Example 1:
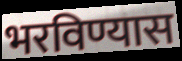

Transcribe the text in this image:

भरविण्यास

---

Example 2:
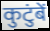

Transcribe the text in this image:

कुटुंबें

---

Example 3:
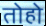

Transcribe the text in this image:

तोहो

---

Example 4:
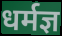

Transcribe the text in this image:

धर्मज्ञ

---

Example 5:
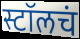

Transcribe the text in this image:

स्टॉलचं